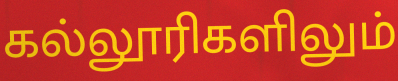
கல்லூரிகளிலும்